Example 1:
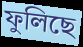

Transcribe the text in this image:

ফুলিছে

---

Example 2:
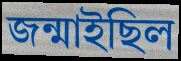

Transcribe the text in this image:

জন্মাইছিল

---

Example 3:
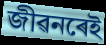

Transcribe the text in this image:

জীৱনৰেই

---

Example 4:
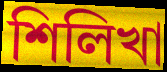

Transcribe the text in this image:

শিলিখা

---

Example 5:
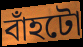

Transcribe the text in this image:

বাঁহটো